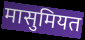
मासुमियत